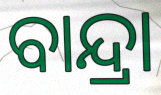
ବାନ୍ଦ୍ରା